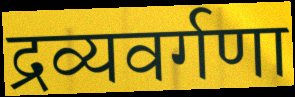
द्रव्यवर्गणा